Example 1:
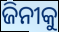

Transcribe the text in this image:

ଜିନୀକୁ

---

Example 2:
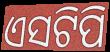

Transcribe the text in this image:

ଏସଟିପି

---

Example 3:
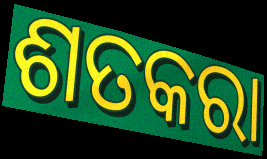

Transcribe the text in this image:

ଶତକରା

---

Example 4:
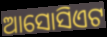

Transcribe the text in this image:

ଆସୋସିଏଟ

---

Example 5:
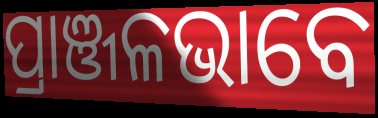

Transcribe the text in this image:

ପ୍ରାଞ୍ଜଳଭାବେ